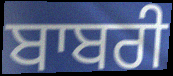
ਬਾਬਰੀ